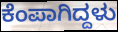
ಕೆಂಪಾಗಿದ್ದಳು